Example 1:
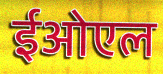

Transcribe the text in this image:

ईओएल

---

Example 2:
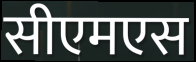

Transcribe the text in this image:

सीएमएस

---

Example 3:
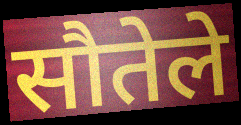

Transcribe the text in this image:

सौतेले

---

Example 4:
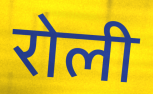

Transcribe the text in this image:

रोली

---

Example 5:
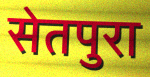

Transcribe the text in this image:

सेतपुरा